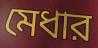
মেধার